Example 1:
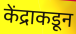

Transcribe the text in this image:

केंद्राकडून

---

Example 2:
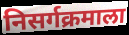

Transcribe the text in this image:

निसर्गक्रमाला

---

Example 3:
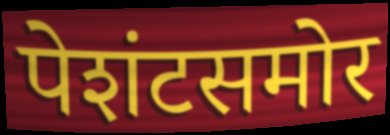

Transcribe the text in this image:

पेशंटसमोर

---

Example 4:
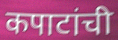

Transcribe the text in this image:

कपाटांची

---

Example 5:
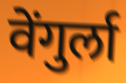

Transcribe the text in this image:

वेंगुर्ला